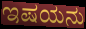
ಇಷಯನು